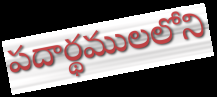
పదార్థములలోని